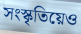
সংস্কৃতিয়েও